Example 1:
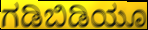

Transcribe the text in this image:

ಗಡಿಬಿಡಿಯೂ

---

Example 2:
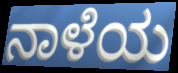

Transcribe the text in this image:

ನಾಳೆಯ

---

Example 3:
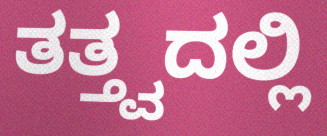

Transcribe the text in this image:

ತತ್ತ್ವದಲ್ಲಿ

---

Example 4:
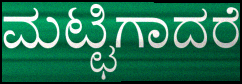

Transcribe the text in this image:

ಮಟ್ಟಿಗಾದರೆ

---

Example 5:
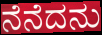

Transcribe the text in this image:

ನೆನೆದನು